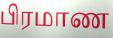
பிரமாண